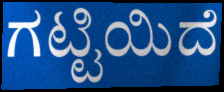
ಗಟ್ಟಿಯಿದೆ